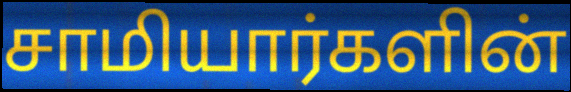
சாமியார்களின்